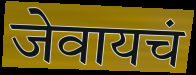
जेवायचं